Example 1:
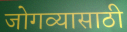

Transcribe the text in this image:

जोगव्यासाठी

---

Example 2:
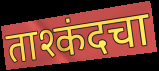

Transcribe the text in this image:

ताश्कंदचा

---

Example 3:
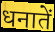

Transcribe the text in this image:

धनातें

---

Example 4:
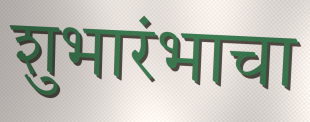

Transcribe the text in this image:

शुभारंभाचा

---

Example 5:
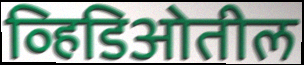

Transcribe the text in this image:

व्हिडिओतील